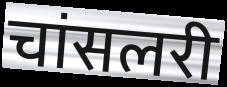
चांसलरी